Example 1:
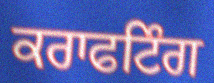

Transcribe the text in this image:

ਕਰਾਫਟਿੰਗ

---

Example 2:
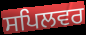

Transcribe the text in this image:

ਸਪਿਲਵਰ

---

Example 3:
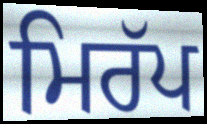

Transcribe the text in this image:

ਮਿਰੱਪ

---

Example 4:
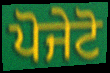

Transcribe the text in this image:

ਪੋਜੇਟੋ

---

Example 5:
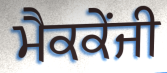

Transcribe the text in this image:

ਮੈਕਕੇਂਜੀ